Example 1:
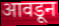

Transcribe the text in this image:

आवडून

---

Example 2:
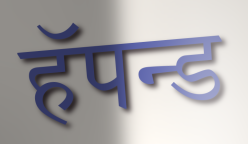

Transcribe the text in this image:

हॅपन्ड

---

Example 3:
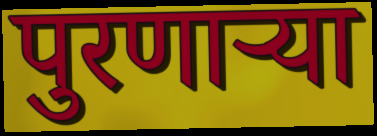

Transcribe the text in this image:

पुरणाऱ्या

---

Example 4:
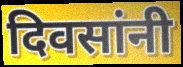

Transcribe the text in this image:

दिवसांनी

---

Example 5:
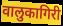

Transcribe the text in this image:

वालुकागिरी